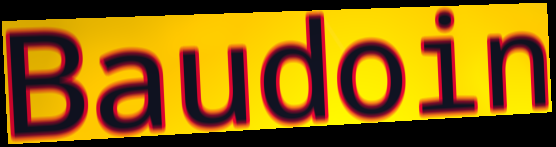
Baudoin